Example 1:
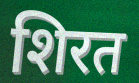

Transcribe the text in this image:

शिरत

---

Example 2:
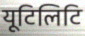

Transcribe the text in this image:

यूटिलिटि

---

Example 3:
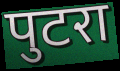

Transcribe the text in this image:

पुटरा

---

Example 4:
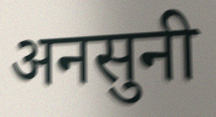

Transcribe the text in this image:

अनसुनी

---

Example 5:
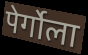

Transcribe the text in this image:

पेर्गोला